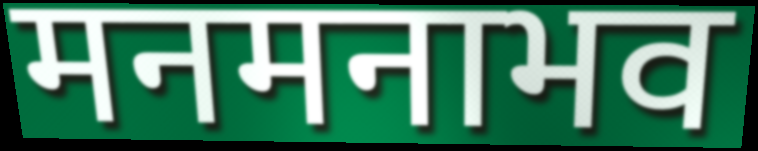
मनमनाभव